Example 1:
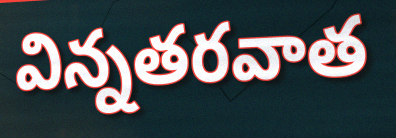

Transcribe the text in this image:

విన్నతరవాత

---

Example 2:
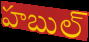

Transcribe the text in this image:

హబుల్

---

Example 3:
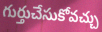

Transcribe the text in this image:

గుర్తుచేసుకోవచ్చు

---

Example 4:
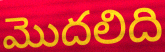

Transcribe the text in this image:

మొదలిది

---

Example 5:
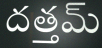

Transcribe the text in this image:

దత్తమ్